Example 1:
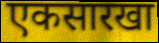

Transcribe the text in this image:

एकसारखा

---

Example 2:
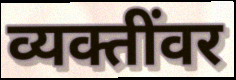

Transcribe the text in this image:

व्यक्तींवर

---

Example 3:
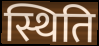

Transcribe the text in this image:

स्थिति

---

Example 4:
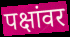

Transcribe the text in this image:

पक्षांवर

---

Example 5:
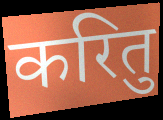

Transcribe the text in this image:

करितु